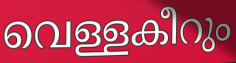
വെള്ളകീറും